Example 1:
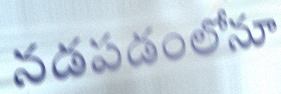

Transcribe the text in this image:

నడపడంలోనూ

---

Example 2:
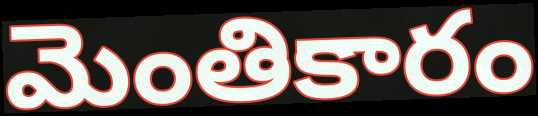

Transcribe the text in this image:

మెంతికారం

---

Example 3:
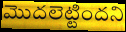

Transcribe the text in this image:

మొదలెట్టిందని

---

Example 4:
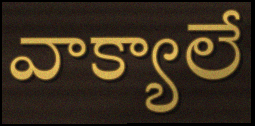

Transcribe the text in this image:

వాక్యాలే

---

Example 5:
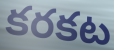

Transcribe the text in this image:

కరకట